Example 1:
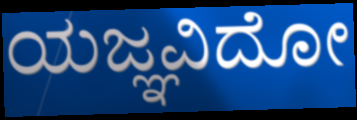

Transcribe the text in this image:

ಯಜ್ಞವಿದೋ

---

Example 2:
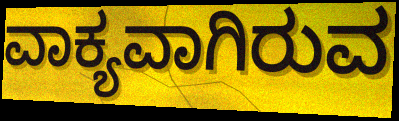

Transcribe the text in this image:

ವಾಕ್ಯವಾಗಿರುವ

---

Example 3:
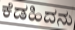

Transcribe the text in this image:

ಕೆಡಹಿದನು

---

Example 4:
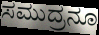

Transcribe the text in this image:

ಸಮುದ್ರನೂ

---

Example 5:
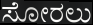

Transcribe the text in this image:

ಸೋರಲು